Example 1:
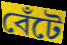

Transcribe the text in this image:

বেঁটে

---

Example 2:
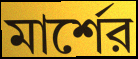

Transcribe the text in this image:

মার্শের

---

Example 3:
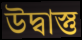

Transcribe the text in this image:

উদ্বাস্তু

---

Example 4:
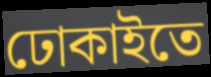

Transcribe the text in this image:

ঢোকাইতে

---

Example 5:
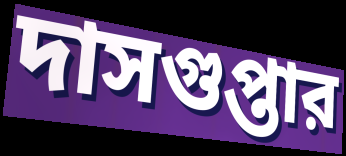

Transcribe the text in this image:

দাসগুপ্তার